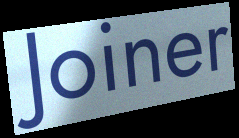
Joiner